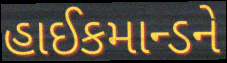
હાઈકમાન્ડને